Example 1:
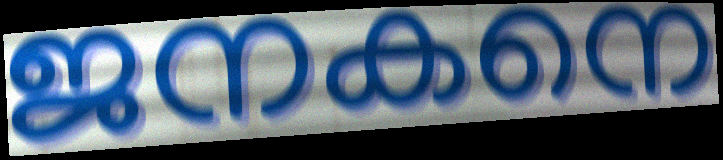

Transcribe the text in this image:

ജനകനെ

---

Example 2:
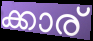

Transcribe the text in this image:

ക്കാര്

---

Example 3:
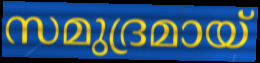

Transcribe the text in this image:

സമുദ്രമായ്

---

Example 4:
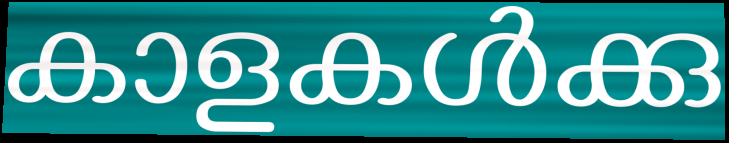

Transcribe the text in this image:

കാളകൾക്കു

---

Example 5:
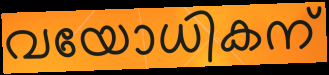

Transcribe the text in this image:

വയോധികന്